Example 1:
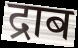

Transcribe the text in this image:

द्राब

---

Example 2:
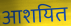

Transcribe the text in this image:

आशयित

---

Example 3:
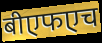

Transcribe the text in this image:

बीएफएच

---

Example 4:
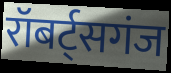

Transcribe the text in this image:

रॉबर्ट्सगंज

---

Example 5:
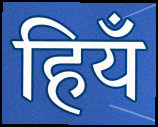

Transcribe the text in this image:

हियँ